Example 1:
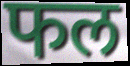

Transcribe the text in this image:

फल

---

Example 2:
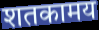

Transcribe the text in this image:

शतकामय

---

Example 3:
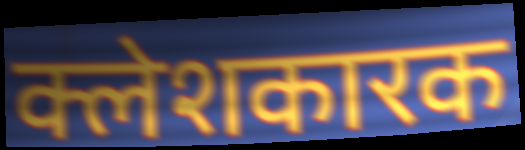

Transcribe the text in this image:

क्लेशकारक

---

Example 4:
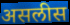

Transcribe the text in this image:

असलीस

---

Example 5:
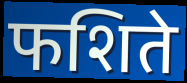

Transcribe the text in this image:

फशिते